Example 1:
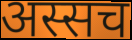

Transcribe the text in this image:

अस्सच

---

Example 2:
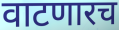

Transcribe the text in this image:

वाटणारच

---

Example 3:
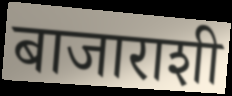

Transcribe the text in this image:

बाजाराशी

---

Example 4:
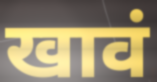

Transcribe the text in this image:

खावं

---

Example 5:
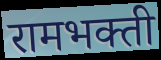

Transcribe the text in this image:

रामभक्ती